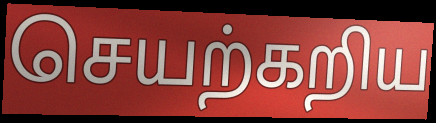
செயற்கறிய